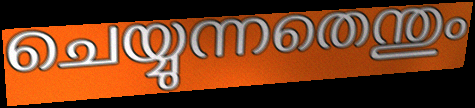
ചെയ്യുന്നതെന്തും